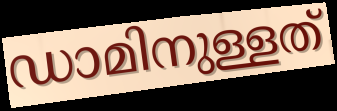
ഡാമിനുള്ളത്